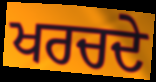
ਖਰਚਦੇ